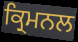
ਕ੍ਰਿਮਨਲ